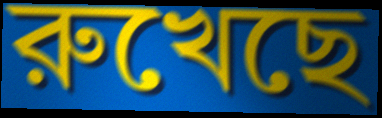
রুখেছে